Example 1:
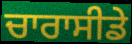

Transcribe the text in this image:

ਚਾਰਾਸੀਡੇ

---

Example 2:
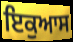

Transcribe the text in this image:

ਇਕੁਆਸ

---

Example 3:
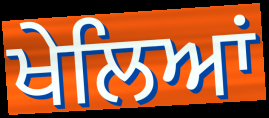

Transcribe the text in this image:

ਖੇਲਿਆਂ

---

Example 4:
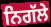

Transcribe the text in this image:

ਨਿਗੱਲੇ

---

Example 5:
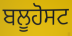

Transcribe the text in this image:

ਬਲੂਹੋਸਟ